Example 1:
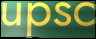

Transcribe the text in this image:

upsc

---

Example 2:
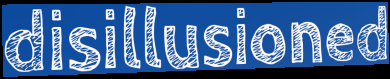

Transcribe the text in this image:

disillusioned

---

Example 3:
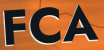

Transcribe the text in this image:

FCA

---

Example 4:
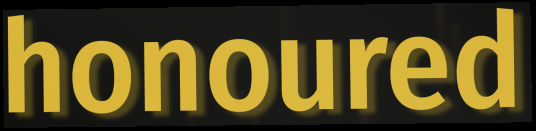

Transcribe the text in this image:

honoured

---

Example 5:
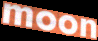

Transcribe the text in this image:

moon